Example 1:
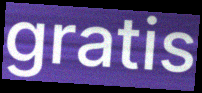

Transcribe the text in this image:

gratis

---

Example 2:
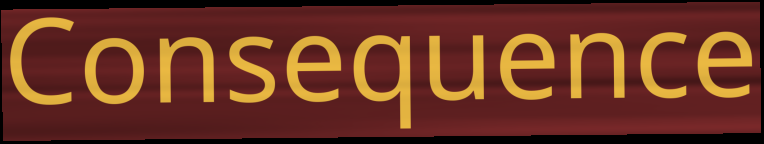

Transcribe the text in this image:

Consequence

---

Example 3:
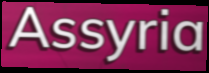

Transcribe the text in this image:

Assyria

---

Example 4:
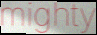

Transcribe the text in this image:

mighty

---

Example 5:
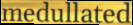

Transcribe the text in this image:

medullated